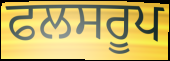
ਫਲਸਰੂਪ